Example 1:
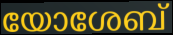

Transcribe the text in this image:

യോശേബ്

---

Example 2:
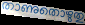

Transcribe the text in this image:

താണുതൊഴുതു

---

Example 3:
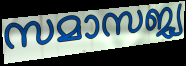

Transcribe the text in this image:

സമാസജ്യ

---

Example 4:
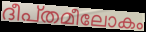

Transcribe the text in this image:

ദീപ്‌തമീലോകം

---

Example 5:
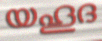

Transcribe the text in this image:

യഹൂദ